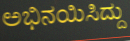
ಅಭಿನಯಿಸಿದ್ದು